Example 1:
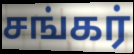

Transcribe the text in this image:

சங்கர்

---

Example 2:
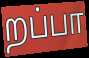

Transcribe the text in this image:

றப்பா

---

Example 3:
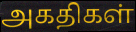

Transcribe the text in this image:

அகதிகள்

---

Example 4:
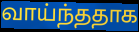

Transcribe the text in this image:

வாய்ந்ததாக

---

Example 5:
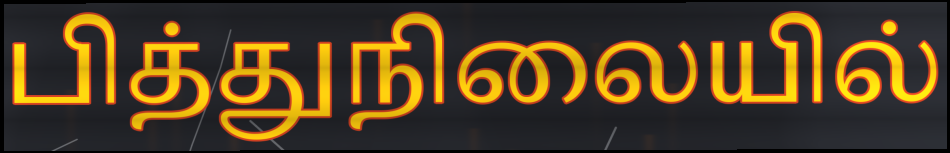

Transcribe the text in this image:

பித்துநிலையில்